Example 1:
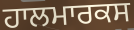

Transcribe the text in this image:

ਹਾਲਮਾਰਕਸ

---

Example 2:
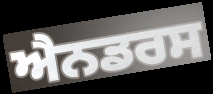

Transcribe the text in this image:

ਐਨਡਰਸ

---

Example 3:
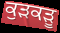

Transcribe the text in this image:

ਕੁੜਕੜੂ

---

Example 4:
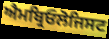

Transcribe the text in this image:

ਐਮਬ੍ਰਿਓਲੋਜਿਸਟ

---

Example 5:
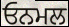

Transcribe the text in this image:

ਓਨਮਲ